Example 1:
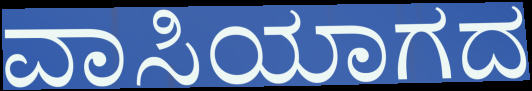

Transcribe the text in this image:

ವಾಸಿಯಾಗದ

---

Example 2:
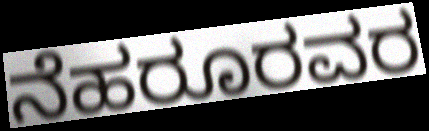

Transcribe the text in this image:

ನೆಹರೂರವರ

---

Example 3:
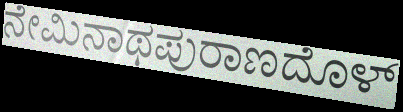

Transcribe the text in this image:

ನೇಮಿನಾಥಪುರಾಣದೊಳ್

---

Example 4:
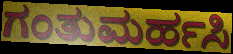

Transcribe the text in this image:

ಗಂತುಮರ್ಹಸಿ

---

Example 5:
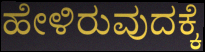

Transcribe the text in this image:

ಹೇಳಿರುವುದಕ್ಕೆ